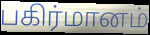
பகிர்மானம்